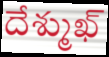
దేశ్ముఖ్